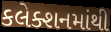
કલેક્શનમાંથી